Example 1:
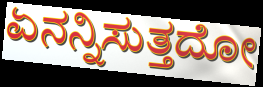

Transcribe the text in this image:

ಏನನ್ನಿಸುತ್ತದೋ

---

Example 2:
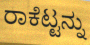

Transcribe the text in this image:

ರಾಕೆಟ್ಟನ್ನು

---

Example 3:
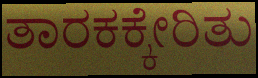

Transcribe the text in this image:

ತಾರಕಕ್ಕೇರಿತು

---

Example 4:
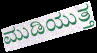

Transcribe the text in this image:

ಮುಡಿಯುತ್ತ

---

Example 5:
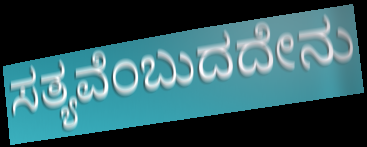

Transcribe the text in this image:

ಸತ್ಯವೆಂಬುದದೇನು